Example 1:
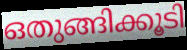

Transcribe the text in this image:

ഒതുങ്ങിക്കൂടി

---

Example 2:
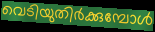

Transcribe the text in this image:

വെടിയുതിർക്കുമ്പോൾ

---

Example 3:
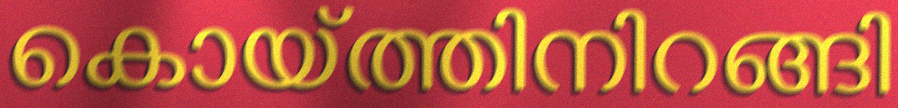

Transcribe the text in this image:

കൊയ്ത്തിനിറങ്ങി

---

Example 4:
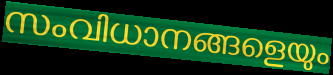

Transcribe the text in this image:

സംവിധാനങ്ങളെയും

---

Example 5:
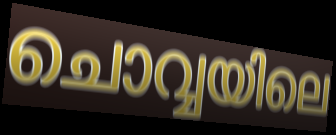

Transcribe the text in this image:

ചൊവ്വയിലെ